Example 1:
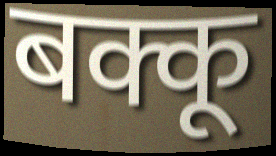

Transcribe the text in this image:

बक्कू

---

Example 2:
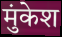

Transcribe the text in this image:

मुंकेश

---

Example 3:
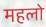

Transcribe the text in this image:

महलो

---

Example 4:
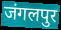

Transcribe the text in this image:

जंगलपुर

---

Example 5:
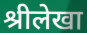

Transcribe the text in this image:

श्रीलेखा